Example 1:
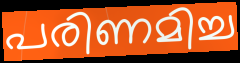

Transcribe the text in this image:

പരിണമിച്ച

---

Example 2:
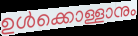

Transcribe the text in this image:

ഉൾക്കൊള്ളാനും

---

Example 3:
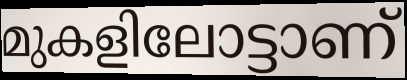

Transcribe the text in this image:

മുകളിലോട്ടാണ്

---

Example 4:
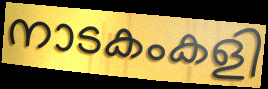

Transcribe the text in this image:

നാടകംകളി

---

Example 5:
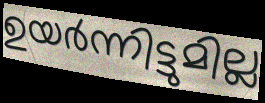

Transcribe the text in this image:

ഉയർന്നിട്ടുമില്ല